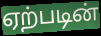
ஏற்படின்